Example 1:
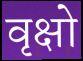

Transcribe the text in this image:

वृक्षो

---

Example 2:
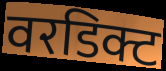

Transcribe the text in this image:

वरडिक्ट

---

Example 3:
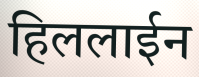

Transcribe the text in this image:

हिललाईन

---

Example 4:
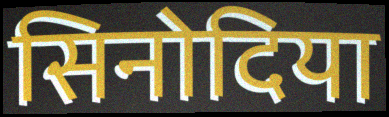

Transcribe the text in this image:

सिनोदिया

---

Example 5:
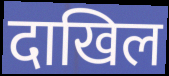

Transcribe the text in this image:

दाखिल